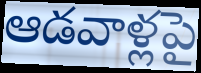
ఆడవాళ్లపై